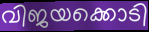
വിജയക്കൊടി